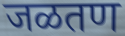
जळतण